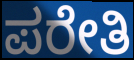
ಪರೇತಿ